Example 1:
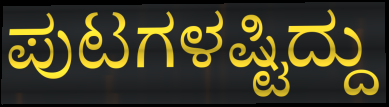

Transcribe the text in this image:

ಪುಟಗಳಷ್ಟಿದ್ದು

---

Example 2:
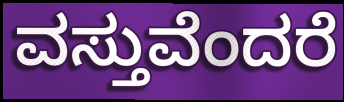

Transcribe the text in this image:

ವಸ್ತುವೆಂದರೆ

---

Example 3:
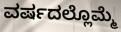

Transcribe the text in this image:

ವರ್ಷದಲ್ಲೊಮ್ಮೆ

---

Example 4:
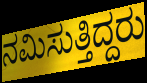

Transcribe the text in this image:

ನಮಿಸುತ್ತಿದ್ದರು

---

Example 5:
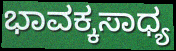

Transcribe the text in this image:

ಭಾವಕ್ಕಸಾಧ್ಯ